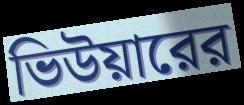
ভিউয়ারের